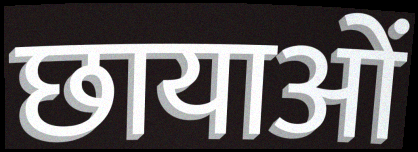
छायाओं